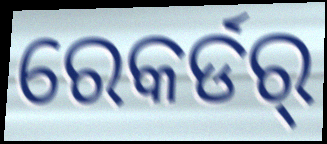
ରେକର୍ଡର୍